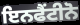
ਇਨਫੈਂਟੀਨੋ